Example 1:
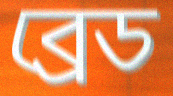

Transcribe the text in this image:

ব্রেড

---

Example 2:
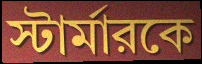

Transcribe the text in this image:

স্টার্মারকে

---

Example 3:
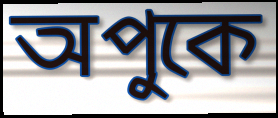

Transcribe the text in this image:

অপুকে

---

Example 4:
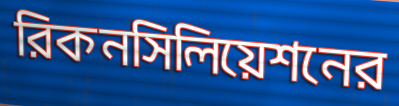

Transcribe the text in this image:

রিকনসিলিয়েশনের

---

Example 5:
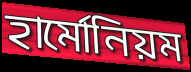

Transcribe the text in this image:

হার্মোনিয়ম